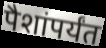
पैशांपर्यंत